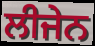
ਲੀਜੇਨ